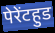
पेरेंटहुड